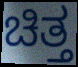
ಚಿತ್ತ